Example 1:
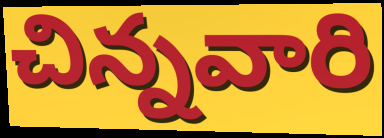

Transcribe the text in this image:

చిన్నవారి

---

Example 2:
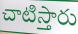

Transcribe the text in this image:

చాటిస్తారు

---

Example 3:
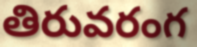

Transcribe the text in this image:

తిరువరంగ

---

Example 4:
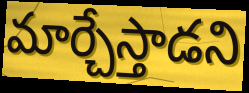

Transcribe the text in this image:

మార్చేస్తాడని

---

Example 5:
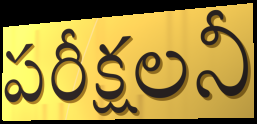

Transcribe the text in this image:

పరీక్షలనీ